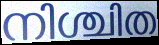
നിശ്ചിത